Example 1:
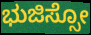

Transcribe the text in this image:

ಭುಜಿಸ್ಸೋ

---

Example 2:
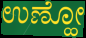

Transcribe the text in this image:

ಉಣ್ಹೋ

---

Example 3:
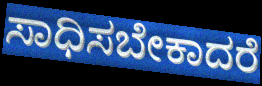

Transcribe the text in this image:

ಸಾಧಿಸಬೇಕಾದರೆ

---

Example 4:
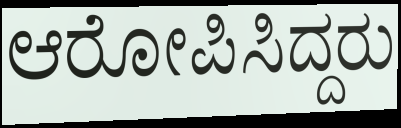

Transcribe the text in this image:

ಆರೋಪಿಸಿದ್ದರು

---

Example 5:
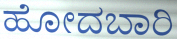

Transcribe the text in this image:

ಹೋದಬಾರಿ